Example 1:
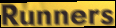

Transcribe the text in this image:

Runners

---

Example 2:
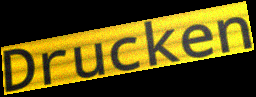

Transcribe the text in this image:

Drucken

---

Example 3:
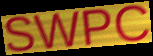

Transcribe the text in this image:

SWPC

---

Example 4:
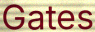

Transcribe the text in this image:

Gates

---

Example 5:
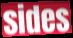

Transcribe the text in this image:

sides